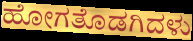
ಹೋಗತೊಡಗಿದಳು